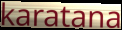
karatana